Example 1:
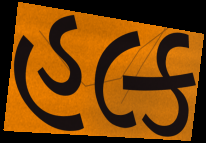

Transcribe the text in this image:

હલ્ક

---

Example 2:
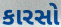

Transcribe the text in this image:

કારસો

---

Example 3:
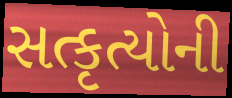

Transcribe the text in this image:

સત્કૃત્યોની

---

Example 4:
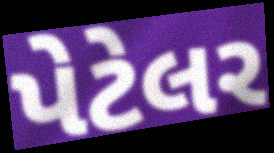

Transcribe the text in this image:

પેટેલર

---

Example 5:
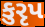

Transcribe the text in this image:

કુરૃપ